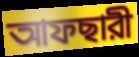
আফছারী